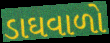
ડાઘવાળો